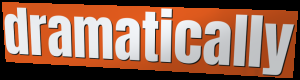
dramatically